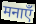
मनाएँ